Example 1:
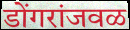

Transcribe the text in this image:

डोंगरांजवळ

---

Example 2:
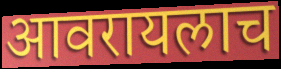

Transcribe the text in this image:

आवरायलाच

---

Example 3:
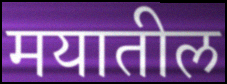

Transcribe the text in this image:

मयातील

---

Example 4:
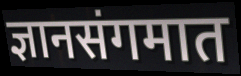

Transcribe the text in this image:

ज्ञानसंगमात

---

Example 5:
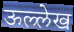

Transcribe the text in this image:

ऊल्लेख